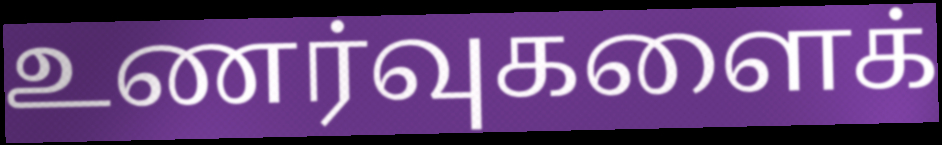
உணர்வுகளைக்